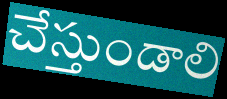
చేస్తుండాలి